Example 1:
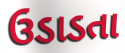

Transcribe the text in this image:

ઉડાડતા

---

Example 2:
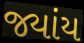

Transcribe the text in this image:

જ્યાંય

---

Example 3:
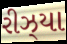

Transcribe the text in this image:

રીઝ્યા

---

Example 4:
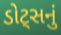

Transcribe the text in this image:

ડોટ્સનું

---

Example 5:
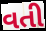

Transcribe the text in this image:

વતી